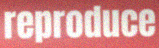
reproduce